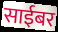
साईबर